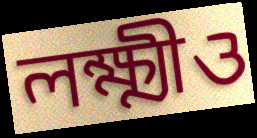
লক্ষ্মীও